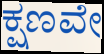
ಕ್ಷಣವೇ